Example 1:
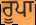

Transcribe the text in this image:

ਰੂਪਾ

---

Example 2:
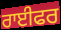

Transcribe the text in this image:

ਰਾਈਫਰ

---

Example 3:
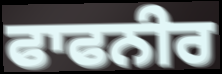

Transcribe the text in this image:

ਫਾਫਨੀਰ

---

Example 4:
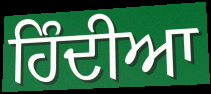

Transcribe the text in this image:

ਹਿੰਦੀਆ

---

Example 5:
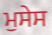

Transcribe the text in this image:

ਮੁਸੇਸ